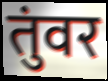
तुंवर